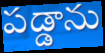
పడ్డాను